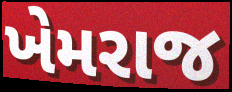
ખેમરાજ